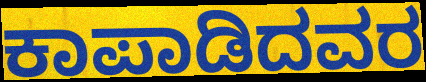
ಕಾಪಾಡಿದವರ